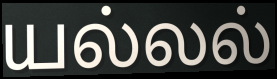
யல்லல்